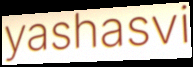
yashasvi